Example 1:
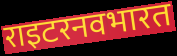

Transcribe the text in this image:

राइटरनवभारत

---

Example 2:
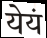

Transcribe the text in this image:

येयं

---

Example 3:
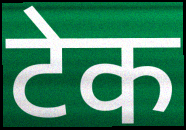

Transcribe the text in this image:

टेक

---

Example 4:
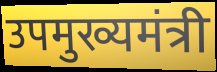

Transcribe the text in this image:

उपमुख्यमंत्री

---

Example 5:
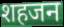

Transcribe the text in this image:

शहजन